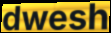
dwesh